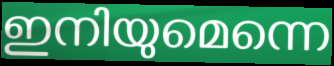
ഇനിയുമെന്നെ